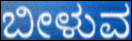
ಬೀಳುವ